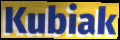
Kubiak